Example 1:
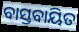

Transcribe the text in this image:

ବାସ୍ତବାୟିତ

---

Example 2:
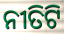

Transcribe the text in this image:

ନୀତିଟି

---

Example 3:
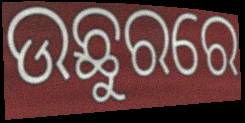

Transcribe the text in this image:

ଉଛୁରରେ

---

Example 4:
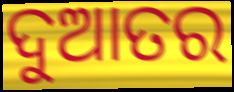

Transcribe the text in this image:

ଦୁଆତର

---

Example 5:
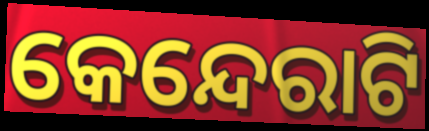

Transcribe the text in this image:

କେନ୍ଦେରାଟି